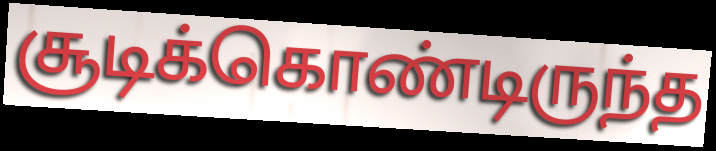
சூடிக்கொண்டிருந்த